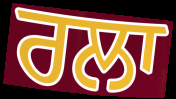
ਰਲਾ